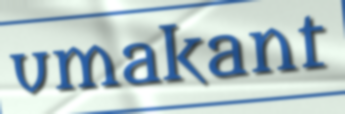
umakant